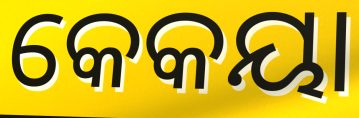
କେକୟା